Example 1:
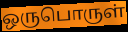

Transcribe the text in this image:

ஒருபொருள்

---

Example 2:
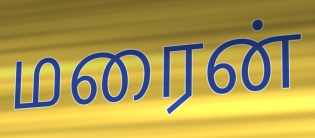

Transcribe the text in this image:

மரைன்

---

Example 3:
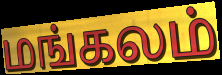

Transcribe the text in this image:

மங்கலம்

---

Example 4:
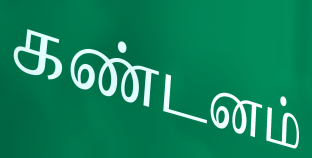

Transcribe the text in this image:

கண்டனம்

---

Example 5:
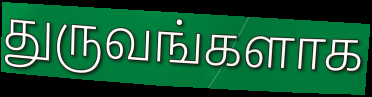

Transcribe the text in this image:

துருவங்களாக